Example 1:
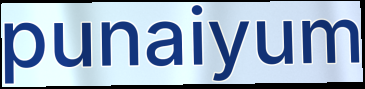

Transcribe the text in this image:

punaiyum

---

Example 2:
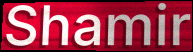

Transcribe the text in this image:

Shamir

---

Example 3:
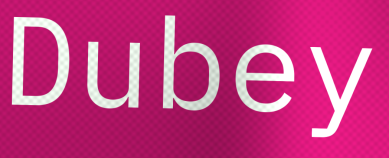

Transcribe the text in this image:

Dubey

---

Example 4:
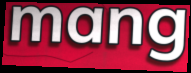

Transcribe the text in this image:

mang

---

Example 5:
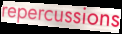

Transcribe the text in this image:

repercussions